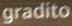
gradito